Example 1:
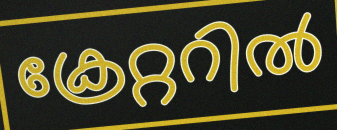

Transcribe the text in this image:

ക്രേറ്ററിൽ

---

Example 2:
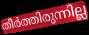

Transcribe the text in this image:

തീർത്തിരുന്നില്ല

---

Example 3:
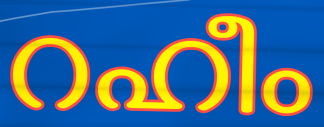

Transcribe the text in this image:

റഹീം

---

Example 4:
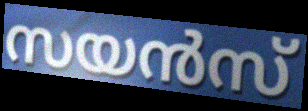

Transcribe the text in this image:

സയൻസ്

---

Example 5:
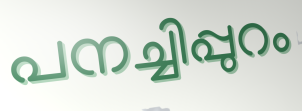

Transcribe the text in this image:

പനച്ചിപ്പുറം